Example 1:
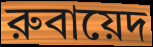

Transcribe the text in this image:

রুবায়েদ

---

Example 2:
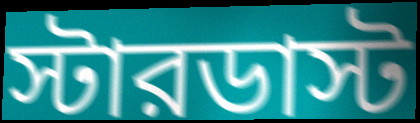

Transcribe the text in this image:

স্টারডাস্ট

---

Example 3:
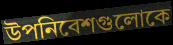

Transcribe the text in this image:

উপনিবেশগুলোকে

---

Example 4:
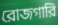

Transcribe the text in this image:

রোজগারি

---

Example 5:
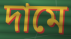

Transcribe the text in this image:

দামে